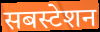
सबस्टेशन